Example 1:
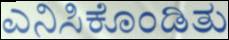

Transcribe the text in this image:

ಎನಿಸಿಕೊಂಡಿತು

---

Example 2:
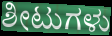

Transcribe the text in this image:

ಶೀಟುಗಳು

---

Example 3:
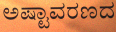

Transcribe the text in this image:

ಅಷ್ಟಾವರಣದ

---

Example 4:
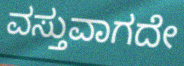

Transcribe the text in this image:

ವಸ್ತುವಾಗದೇ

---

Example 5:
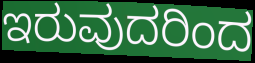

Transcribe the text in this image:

ಇರುವುದರಿಂದ